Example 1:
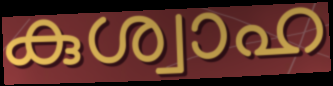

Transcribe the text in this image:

കുശ്വാഹ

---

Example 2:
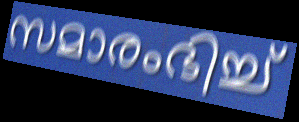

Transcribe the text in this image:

സമാരംഭിച്ച്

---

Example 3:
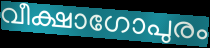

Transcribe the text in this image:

വീക്ഷാഗോപുരം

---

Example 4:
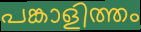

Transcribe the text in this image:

പങ്കാളിത്തം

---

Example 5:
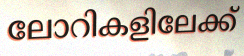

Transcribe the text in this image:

ലോറികളിലേക്ക്